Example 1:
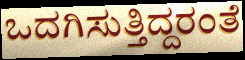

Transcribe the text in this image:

ಒದಗಿಸುತ್ತಿದ್ದರಂತೆ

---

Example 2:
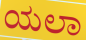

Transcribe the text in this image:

ಯಲಾ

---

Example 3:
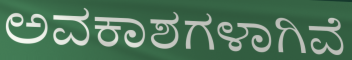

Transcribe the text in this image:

ಅವಕಾಶಗಳಾಗಿವೆ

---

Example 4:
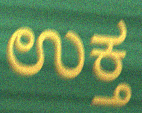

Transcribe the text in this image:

ಉಕ್ತ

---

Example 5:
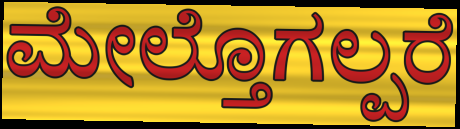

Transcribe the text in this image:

ಮೇಲ್ತೊಗಲ್ಪರೆ